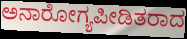
ಅನಾರೋಗ್ಯಪೀಡಿತರಾದ